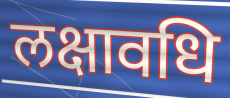
लक्षावधि